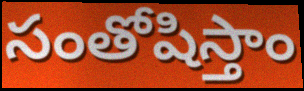
సంతోషిస్తాం